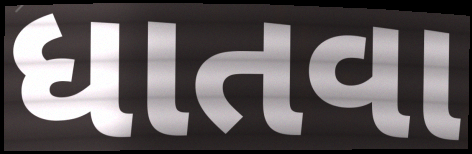
ધાતવા